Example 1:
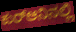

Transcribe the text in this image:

ಕುರ್‍ಆನಿನಲ್ಲಿ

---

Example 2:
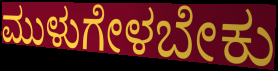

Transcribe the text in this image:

ಮುಳುಗೇಳಬೇಕು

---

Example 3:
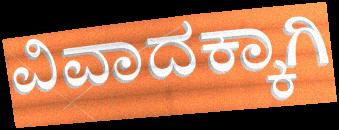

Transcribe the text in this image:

ವಿವಾದಕ್ಕಾಗಿ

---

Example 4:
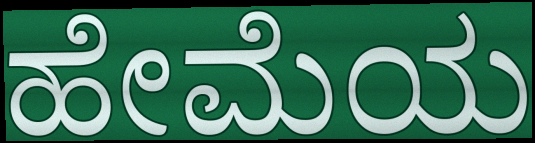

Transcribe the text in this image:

ಹೇಮೆಯ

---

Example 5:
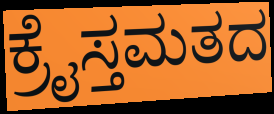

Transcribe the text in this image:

ಕ್ರೈಸ್ತಮತದ